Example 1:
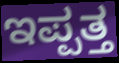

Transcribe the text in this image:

ಇಪ್ಪತ್ತ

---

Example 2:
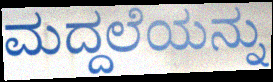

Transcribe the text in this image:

ಮದ್ದಲೆಯನ್ನು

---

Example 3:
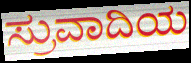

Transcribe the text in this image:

ಸ್ರುವಾದಿಯ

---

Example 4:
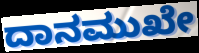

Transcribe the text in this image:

ದಾನಮುಖೇ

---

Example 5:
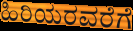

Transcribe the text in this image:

ಹಿರಿಯರವರೆಗೆ